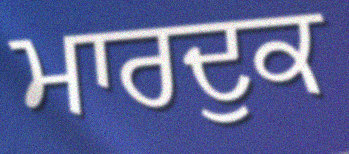
ਮਾਰਦੁਕ